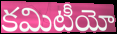
కమిటీయో